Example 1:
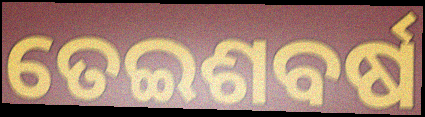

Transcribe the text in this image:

ତେଇଶବର୍ଷ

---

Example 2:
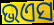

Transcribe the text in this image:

ଭଏସ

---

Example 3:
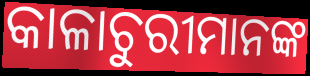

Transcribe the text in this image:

କାଳାଚୁରୀମାନଙ୍କ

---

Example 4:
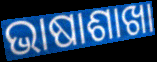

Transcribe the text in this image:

ଭାଷାଶାଖା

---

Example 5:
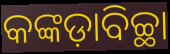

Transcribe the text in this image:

କଙ୍କଡ଼ାବିଚ୍ଛା